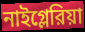
নাইগ্লেরিয়া